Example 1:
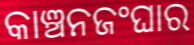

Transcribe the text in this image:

କାଞ୍ଚନଜଂଘାର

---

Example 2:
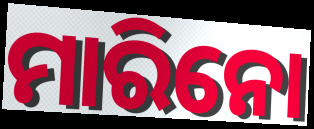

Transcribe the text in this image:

ମାରିନୋ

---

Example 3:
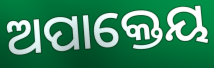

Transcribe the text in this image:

ଅପାକ୍ତେୟ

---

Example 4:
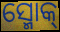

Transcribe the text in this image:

ସ୍ମୋକ୍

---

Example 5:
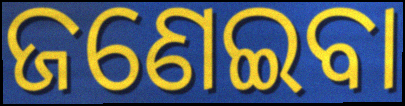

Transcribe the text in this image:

ଜଣେଇବା